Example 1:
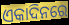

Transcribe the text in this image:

ଏକାଦିନରେ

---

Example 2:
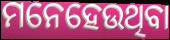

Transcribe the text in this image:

ମନେହେଉଥିବା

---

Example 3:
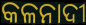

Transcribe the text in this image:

କଳନାଦୀ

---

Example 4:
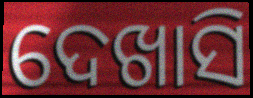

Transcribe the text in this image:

ଦେଖାସି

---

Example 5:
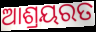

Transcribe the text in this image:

ଆଶ୍ରୟରତ